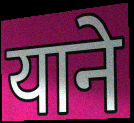
याने